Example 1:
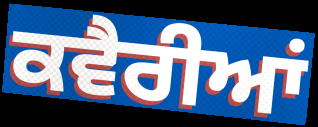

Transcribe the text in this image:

ਕਵੈਰੀਆਂ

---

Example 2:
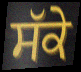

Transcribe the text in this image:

ਸੱਕੇ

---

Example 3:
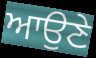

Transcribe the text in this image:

ਆਉਣੇ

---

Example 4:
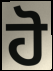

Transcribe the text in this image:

ਹੋ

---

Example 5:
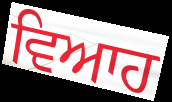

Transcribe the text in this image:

ਵਿਆਹ